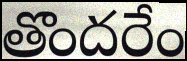
తొందరేం